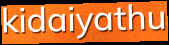
kidaiyathu